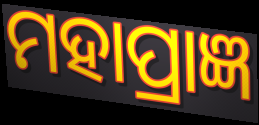
ମହାପ୍ରାଜ୍ଞ